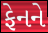
ફેનને